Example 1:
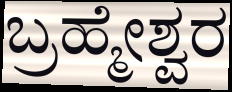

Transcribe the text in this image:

ಬ್ರಹ್ಮೇಶ್ವರ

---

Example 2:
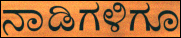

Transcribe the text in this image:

ನಾಡಿಗಳಿಗೂ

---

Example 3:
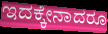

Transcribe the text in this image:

ಇದಕ್ಕೇನಾದರೂ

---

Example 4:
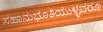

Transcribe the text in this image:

ಸಹಾನುಭೂತಿಯುಳ್ಳವರೂ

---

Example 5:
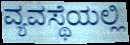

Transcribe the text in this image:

ವ್ಯವಸ್ಥೆಯಲ್ಲಿ